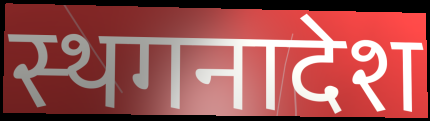
स्थगनादेश